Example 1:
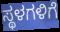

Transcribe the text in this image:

ಸ್ಥಳಗಳಿಗೆ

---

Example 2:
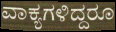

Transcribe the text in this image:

ವಾಕ್ಯಗಳಿದ್ದರೂ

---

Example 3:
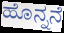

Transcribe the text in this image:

ಹೊನ್ನನೆ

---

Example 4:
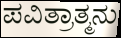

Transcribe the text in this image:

ಪವಿತ್ರಾತ್ಮನು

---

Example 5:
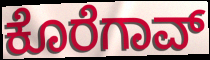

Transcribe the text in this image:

ಕೊರೆಗಾವ್